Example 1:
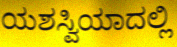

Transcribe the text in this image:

ಯಶಸ್ವಿಯಾದಲ್ಲಿ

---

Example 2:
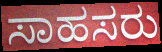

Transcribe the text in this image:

ಸಾಹಸರು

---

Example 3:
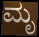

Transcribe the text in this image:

ಮೃ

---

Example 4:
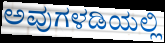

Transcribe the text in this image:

ಅವುಗಳಡಿಯಲ್ಲಿ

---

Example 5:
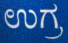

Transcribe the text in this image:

ಉಗ್ರ